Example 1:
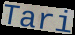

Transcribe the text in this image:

Tari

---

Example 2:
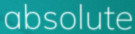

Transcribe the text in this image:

absolute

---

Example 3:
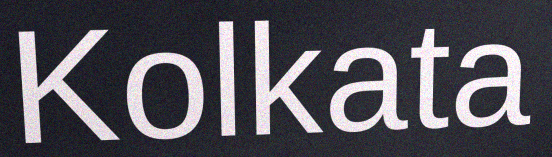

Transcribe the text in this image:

Kolkata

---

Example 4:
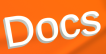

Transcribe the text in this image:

Docs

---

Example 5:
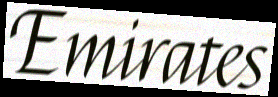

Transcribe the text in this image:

Emirates